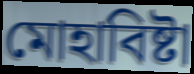
মোহাবিষ্টা